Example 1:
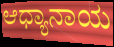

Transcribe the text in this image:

ಆಧ್ಯಾನಾಯ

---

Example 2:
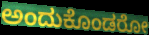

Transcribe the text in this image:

ಅಂದುಕೊಂಡರೋ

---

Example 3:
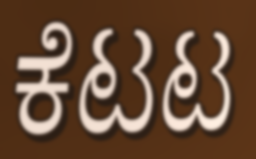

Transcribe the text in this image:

ಕೆಟಟ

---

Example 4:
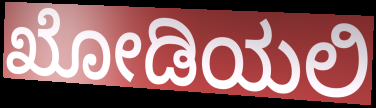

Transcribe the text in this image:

ಖೋಡಿಯಲಿ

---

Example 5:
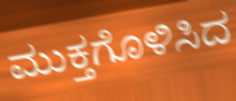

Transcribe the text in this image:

ಮುಕ್ತಗೊಳಿಸಿದ